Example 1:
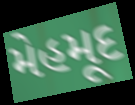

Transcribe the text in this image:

મેહમૂદ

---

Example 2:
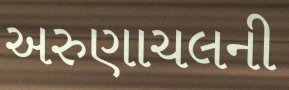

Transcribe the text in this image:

અરુણાચલની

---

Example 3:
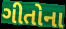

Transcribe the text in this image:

ગીતોના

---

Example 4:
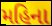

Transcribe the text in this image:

મહિના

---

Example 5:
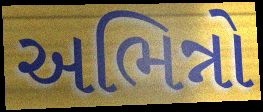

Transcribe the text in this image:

અભિન્નો